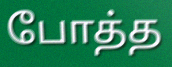
போத்த